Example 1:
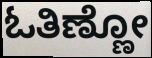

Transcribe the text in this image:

ಓತಿಣ್ಣೋ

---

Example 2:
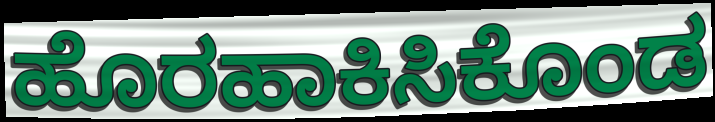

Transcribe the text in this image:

ಹೊರಹಾಕಿಸಿಕೊಂಡ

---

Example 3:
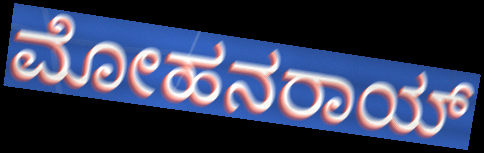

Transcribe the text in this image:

ಮೋಹನರಾಯ್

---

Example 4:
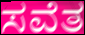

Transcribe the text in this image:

ಸವೆತ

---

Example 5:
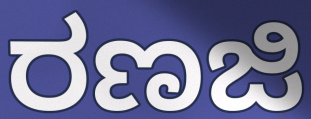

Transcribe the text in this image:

ರಣಜಿ